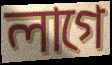
লাগে